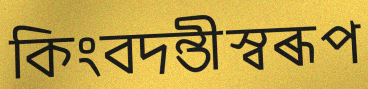
কিংবদন্তীস্বৰূপ